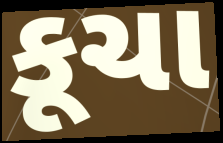
કૂચા